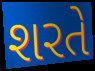
શરતે